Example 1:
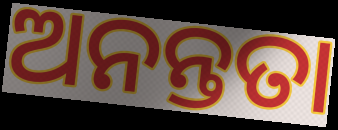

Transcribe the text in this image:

ଅନନ୍ତତା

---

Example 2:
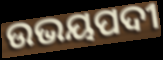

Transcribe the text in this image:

ଉଭୟପଦୀ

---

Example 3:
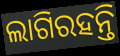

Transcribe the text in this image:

ଲାଗିରହନ୍ତି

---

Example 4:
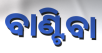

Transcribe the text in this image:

ବାଣ୍ଟିବା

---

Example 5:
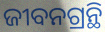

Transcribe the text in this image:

ଜୀବନଗ୍ରନ୍ଥି